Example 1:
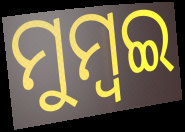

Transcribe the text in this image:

ମୁମ୍ବଇ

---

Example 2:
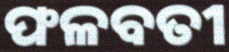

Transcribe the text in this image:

ଫଳବତୀ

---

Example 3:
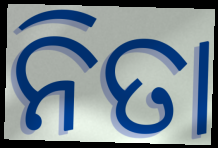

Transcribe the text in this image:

ନିତା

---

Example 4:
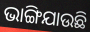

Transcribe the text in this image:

ଭାଙ୍ଗିଯାଉଛି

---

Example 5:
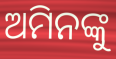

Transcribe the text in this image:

ଅମିନଙ୍କୁ